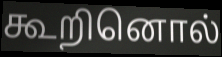
கூறினொல்